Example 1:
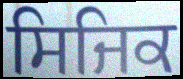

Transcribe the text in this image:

ਸਿਜਿਕ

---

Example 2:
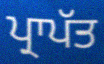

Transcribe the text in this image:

ਪ੍ਰਾਪੱਤ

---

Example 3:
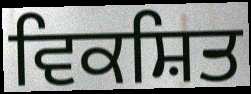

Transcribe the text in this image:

ਵਿਕਸ਼ਿਤ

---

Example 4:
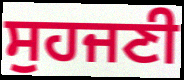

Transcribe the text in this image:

ਸੁਹਜਣੀ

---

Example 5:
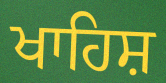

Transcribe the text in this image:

ਖਾਹਿਸ਼